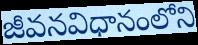
జీవనవిధానంలోని